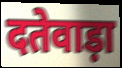
दतेवाड़ा